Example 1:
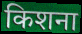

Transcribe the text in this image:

किशना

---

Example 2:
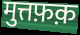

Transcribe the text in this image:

मुत्तफ़क़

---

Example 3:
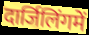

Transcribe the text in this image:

दार्जिलिंगमें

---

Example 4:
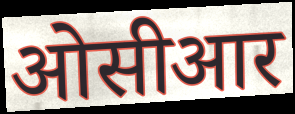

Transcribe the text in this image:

ओसीआर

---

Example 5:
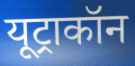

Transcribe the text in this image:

यूट्राकॉन